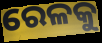
ରେଳକୁ